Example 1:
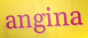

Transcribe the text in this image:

angina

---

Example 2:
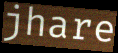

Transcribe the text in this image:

jhare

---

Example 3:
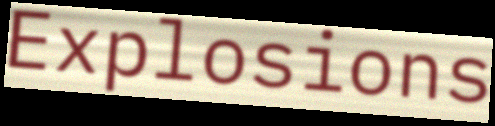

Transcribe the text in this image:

Explosions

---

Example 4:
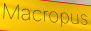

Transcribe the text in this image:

Macropus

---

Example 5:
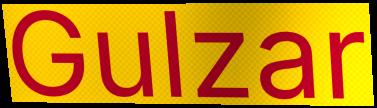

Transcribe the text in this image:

Gulzar